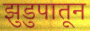
झुडुपातून